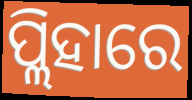
ପ୍ଲିହାରେ